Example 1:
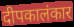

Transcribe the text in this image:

दीपकालंकार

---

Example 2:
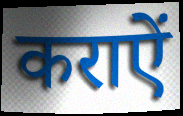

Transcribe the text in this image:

कराऐं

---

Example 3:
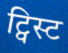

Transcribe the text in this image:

ट्विस्ट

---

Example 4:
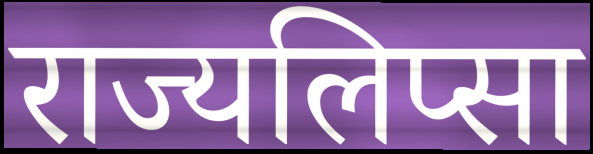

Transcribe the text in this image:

राज्यलिप्सा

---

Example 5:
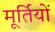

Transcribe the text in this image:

मूर्तियों